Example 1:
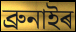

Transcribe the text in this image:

ব্ৰুনাইৰ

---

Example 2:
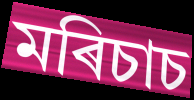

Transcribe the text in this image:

মৰিচাচ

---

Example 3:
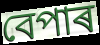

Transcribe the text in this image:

বেপাৰ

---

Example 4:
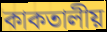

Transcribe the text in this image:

কাকতালীয়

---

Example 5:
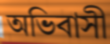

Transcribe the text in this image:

অভিবাসী